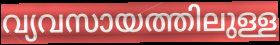
വ്യവസായത്തിലുള്ള